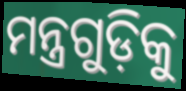
ମନ୍ତ୍ରଗୁଡ଼ିକୁ